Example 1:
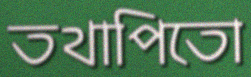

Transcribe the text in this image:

তথাপিতো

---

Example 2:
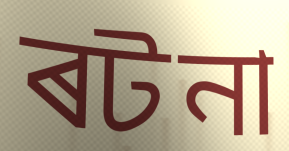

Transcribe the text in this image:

ৰটনা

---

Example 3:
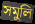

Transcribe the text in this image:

সমুলি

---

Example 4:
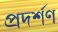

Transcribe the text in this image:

প্ৰদৰ্শণ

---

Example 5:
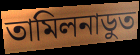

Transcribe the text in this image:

তামিলনাডুত